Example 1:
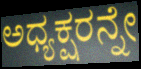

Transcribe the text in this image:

ಅಧ್ಯಕ್ಷರನ್ನೇ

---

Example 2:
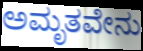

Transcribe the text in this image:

ಅಮೃತವೇನು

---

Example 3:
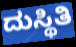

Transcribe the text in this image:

ದುಸ್ಥಿತಿ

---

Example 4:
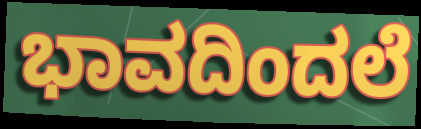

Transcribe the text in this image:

ಭಾವದಿಂದಲೆ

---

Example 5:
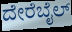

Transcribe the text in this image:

ದೇರೆಬೈಲ್